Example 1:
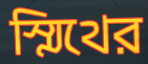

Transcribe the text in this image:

স্মিথের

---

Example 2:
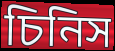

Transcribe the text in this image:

চিনিস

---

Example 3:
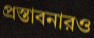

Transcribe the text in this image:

প্রস্তাবনারও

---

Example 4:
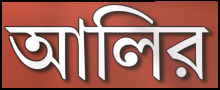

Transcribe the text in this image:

আলির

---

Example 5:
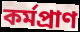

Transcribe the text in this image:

কর্মপ্রাণ